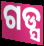
ଗଡ୍ସ